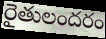
రైతులందరం